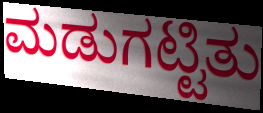
ಮಡುಗಟ್ಟಿತು